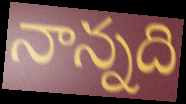
నాన్నది